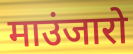
माउंजारो